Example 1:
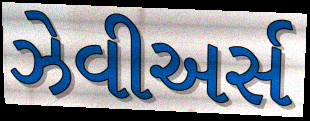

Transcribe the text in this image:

ઝેવીઅર્સ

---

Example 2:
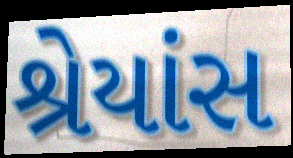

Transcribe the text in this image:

શ્રેયાંસ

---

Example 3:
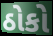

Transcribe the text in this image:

ઠોકો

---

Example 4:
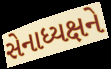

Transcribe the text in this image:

સેનાધ્યક્ષને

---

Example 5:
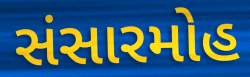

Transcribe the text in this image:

સંસારમોહ